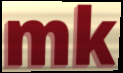
mk